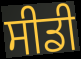
ਸੀਡੀ